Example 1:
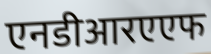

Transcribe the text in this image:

एनडीआरएएफ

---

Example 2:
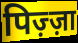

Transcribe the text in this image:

पिज़्ज़ा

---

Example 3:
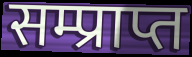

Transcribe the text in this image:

सम्प्राप्त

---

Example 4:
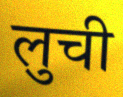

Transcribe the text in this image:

लुची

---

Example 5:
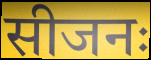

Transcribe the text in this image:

सीजनः